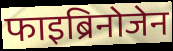
फाइब्रिनोजेन